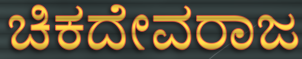
ಚಿಕದೇವರಾಜ